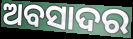
ଅବସାଦର